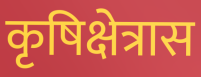
कृषिक्षेत्रास